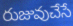
రుజువుచేసే